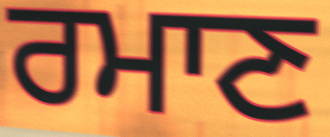
ਰਮਾਣ